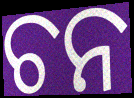
ଚନ